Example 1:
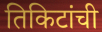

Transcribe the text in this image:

तिकिटांची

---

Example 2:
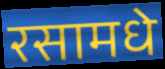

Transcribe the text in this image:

रसामधे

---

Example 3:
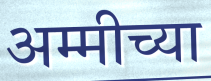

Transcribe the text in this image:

अम्मीच्या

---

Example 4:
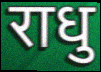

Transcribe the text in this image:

राधु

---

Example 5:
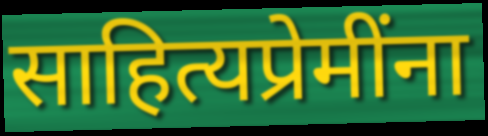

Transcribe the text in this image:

साहित्यप्रेमींना